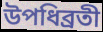
উপধিব্রতী